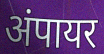
अंपायर